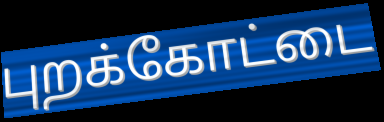
புறக்கோட்டை